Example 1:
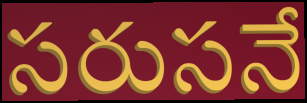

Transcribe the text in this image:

సరుసనే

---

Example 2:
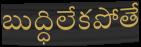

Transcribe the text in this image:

బుద్ధిలేకపోతే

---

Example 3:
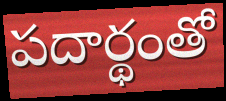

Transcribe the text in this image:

పదార్థంతో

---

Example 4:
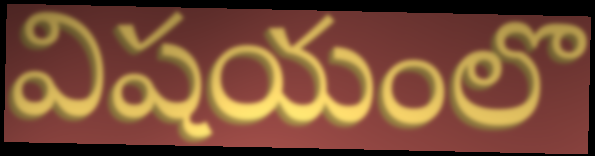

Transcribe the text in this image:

విషయంలొ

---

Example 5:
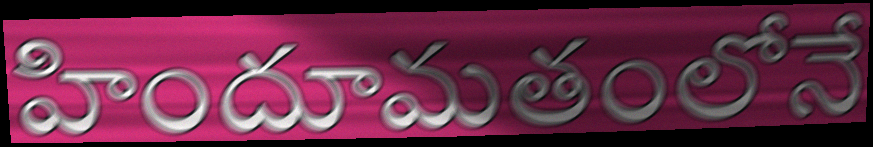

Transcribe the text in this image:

హిందూమతంలోనే